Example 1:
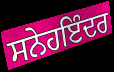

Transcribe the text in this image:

ਸਨੇਹਇੰਦਰ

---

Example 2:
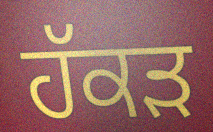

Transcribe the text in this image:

ਹੱਕੜ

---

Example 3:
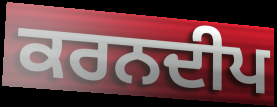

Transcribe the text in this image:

ਕਰਨਦੀਪ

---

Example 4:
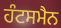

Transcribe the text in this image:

ਹੰਟਸਮੈਨ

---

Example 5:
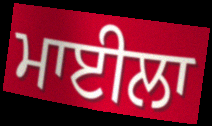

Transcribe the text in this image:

ਮਾਈਲਾ